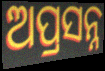
ଅପ୍ରସନ୍ନ